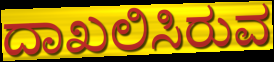
ದಾಖಲಿಸಿರುವ